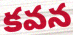
కవన